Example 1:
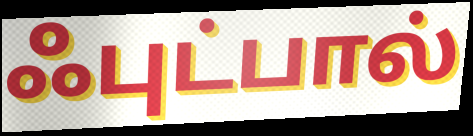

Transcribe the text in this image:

ஃபுட்பால்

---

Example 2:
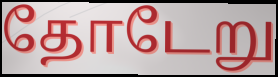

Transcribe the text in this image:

தோடேறு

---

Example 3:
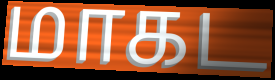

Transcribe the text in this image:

மாகட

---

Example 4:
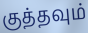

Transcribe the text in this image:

குத்தவும்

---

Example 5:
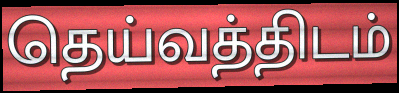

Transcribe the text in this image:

தெய்வத்திடம்